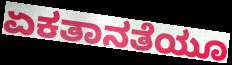
ಏಕತಾನತೆಯೂ